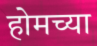
होमच्या